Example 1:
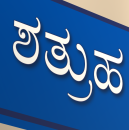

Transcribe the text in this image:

ಶತ್ರುಹ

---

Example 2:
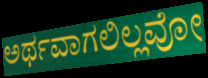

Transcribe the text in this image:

ಅರ್ಥವಾಗಲಿಲ್ಲವೋ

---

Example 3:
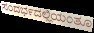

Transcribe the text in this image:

ಸಂದರ್ಭದಲ್ಲಿಯಂತೂ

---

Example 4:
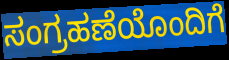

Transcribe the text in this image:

ಸಂಗ್ರಹಣೆಯೊಂದಿಗೆ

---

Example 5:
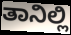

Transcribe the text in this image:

ತಾನಿಲ್ಲಿ